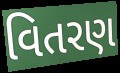
વિતરણ